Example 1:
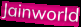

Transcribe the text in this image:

Jainworld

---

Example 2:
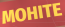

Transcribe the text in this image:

MOHITE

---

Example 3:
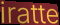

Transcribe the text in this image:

iratte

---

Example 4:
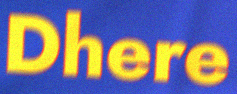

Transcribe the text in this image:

Dhere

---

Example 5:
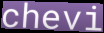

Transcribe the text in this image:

chevi